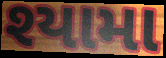
શ્યામા